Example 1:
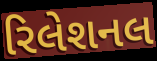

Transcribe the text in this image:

રિલેશનલ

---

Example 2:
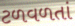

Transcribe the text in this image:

ટળવળતાં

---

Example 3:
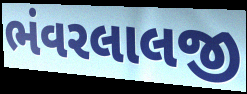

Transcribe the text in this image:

ભંવરલાલજી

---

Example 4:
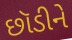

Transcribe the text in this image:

છૉડીને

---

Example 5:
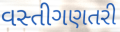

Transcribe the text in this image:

વસ્તીગણતરી